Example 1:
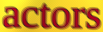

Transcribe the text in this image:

actors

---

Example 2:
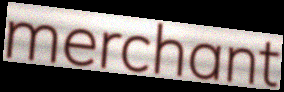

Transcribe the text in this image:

merchant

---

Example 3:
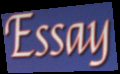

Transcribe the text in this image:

Essay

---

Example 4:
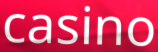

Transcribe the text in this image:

casino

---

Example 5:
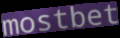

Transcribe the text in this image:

mostbet